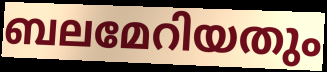
ബലമേറിയതും